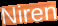
Niren